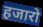
हजारो